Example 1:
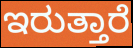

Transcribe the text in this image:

ಇರುತ್ತಾರೆ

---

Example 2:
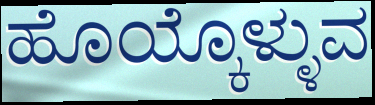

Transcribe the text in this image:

ಹೊಯ್ಕೊಳ್ಳುವ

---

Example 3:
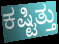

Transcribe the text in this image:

ಕಷ್ಟಿತ್ತು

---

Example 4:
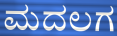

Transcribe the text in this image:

ಮದಲಗ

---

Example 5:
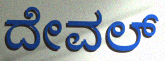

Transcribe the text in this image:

ದೇವಲ್